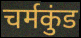
चर्मकुंड